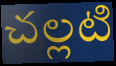
చల్లటి